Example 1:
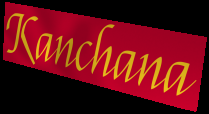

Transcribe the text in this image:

Kanchana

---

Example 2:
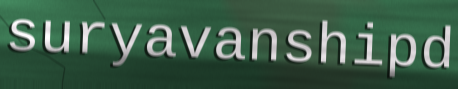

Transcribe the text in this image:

suryavanshipd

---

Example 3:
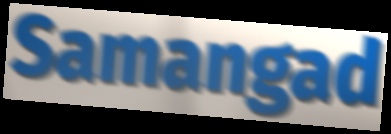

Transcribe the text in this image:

Samangad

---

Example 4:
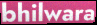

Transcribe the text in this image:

bhilwara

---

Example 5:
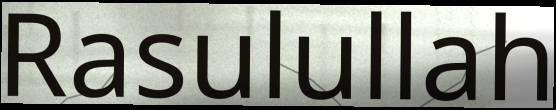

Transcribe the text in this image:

Rasulullah